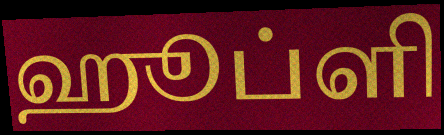
ஹூப்ளி